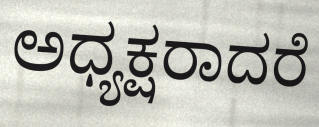
ಅಧ್ಯಕ್ಷರಾದರೆ